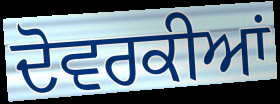
ਦੋਵਰਕੀਆਂ